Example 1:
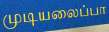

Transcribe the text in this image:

முடியலைப்பா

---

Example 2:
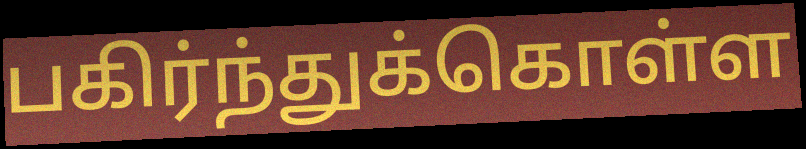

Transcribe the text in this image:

பகிர்ந்துக்கொள்ள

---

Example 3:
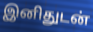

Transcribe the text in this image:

இனிதுடன்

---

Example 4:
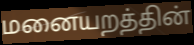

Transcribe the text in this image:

மனையறத்தின்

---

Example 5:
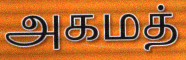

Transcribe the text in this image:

அகமத்